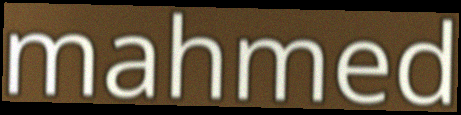
mahmed